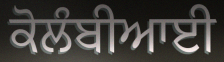
ਕੋਲੰਬੀਆਈ